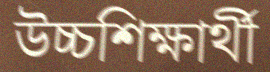
উচ্চশিক্ষার্থী